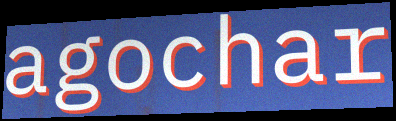
agochar